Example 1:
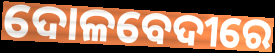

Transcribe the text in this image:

ଦୋଳବେଦୀରେ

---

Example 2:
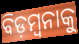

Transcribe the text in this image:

ବିଡ଼ମ୍ୱନାକୁ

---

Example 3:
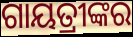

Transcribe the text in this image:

ଗାୟତ୍ରୀଙ୍କର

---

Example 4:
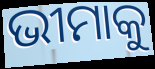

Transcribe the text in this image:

ଭୀମାକୁ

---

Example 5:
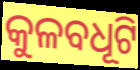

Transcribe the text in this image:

କୁଳବଧୂଟି